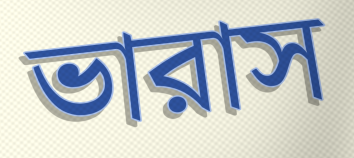
ভারাস